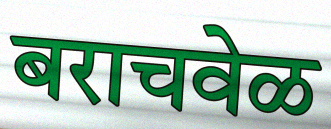
बराचवेळ